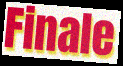
Finale